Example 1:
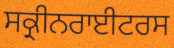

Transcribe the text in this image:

ਸਕ੍ਰੀਨਰਾਈਟਰਸ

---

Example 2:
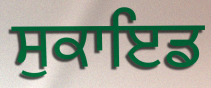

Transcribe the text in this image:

ਸੁਕਾਇਡ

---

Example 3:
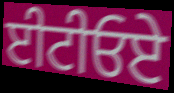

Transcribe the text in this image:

ਈਟੀਓਏ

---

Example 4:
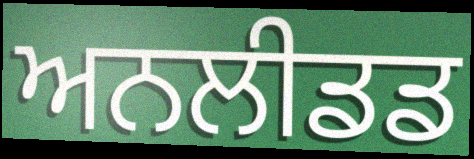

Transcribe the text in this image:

ਅਨਲੀਡਡ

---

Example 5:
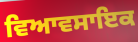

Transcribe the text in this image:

ਵਿਆਵਸਾਇਕ